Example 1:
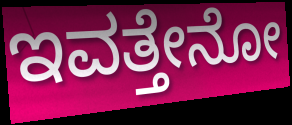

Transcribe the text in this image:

ಇವತ್ತೇನೋ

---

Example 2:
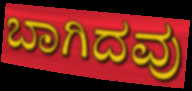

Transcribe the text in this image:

ಬಾಗಿದವು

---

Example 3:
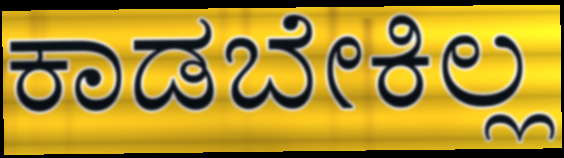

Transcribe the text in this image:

ಕಾಡಬೇಕಿಲ್ಲ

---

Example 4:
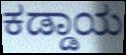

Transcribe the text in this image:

ಕಡ್ಡಾಯ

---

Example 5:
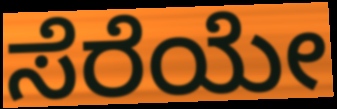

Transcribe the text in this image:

ಸೆರೆಯೇ